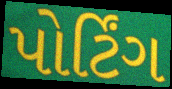
પોર્ટિંગ